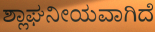
ಶ್ಲಾಘನೀಯವಾಗಿದೆ